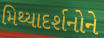
મિથ્યાદર્શનોને